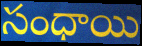
సంధాయి